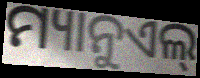
ମ୍ୟାନୁଏଲ୍